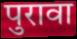
पुरावा